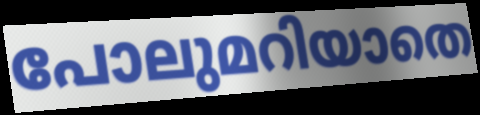
പോലുമറിയാതെ